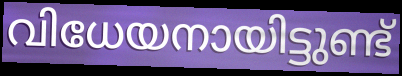
വിധേയനായിട്ടുണ്ട്